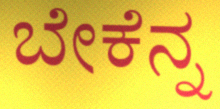
ಬೇಕೆನ್ನ